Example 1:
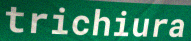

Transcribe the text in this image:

trichiura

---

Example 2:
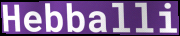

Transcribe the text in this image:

Hebballi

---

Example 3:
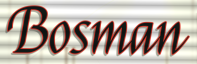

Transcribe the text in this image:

Bosman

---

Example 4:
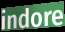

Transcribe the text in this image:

indore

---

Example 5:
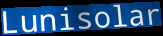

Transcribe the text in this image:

Lunisolar